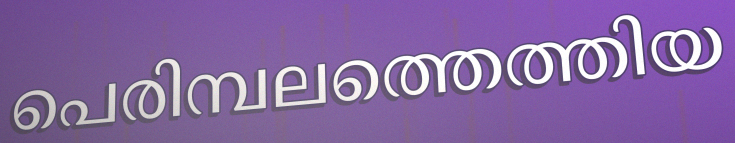
പെരിമ്പലത്തെത്തിയ